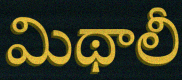
మిథాలీ